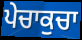
ਪੇਚਾਕੁਚਾ